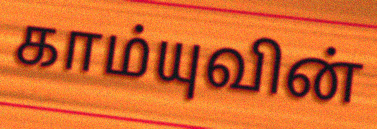
காம்யுவின்